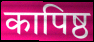
कापिष्ठ